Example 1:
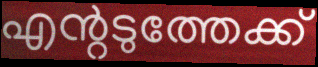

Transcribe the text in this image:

എന്റടുത്തേക്ക്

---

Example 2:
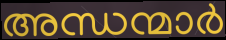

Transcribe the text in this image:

അന്ധന്മാർ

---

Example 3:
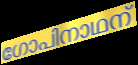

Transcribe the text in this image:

ഗോപിനാഥന്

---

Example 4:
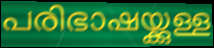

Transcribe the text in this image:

പരിഭാഷയ്ക്കുള്ള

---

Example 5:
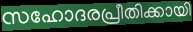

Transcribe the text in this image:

സഹോദരപ്രീതിക്കായി